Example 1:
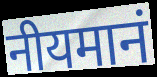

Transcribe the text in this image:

नीयमानं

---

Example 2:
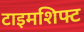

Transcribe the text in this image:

टाइमशिफ्ट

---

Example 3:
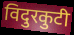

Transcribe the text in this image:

विदुरकुटी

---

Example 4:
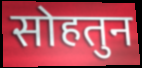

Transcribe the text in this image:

सोहतुन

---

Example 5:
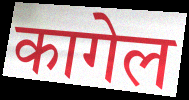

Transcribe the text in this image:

कागेल